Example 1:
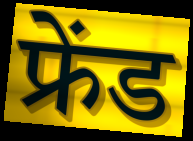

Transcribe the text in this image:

फ्रेंड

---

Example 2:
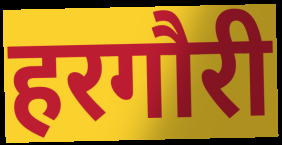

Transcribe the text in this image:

हरगौरी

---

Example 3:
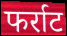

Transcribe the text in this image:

फर्राट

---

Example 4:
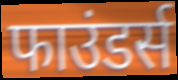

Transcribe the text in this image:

फाउंडर्स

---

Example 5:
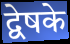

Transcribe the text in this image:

द्वेषके